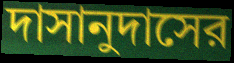
দাসানুদাসের